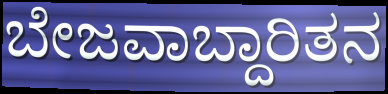
ಬೇಜವಾಬ್ದಾರಿತನ